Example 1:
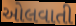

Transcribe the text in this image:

ઓલવાતી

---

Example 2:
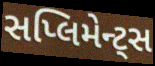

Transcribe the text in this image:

સપ્લિમેન્ટ્સ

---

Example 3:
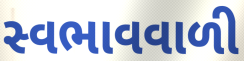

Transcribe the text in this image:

સ્વભાવવાળી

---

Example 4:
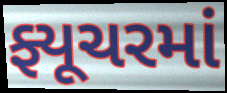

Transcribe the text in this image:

ફ્યૂચરમાં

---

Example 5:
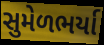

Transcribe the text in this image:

સુમેળભર્યા